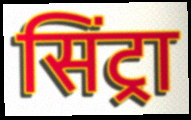
सिंट्रा